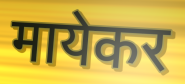
मायेकर